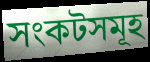
সংকটসমূহ